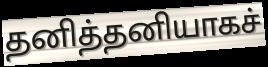
தனித்தனியாகச்